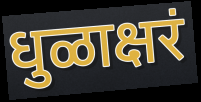
धुळाक्षरं